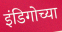
इंडिगोच्या